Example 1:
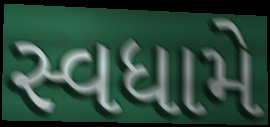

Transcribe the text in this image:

સ્વધામે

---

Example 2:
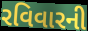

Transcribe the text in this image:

રવિવારની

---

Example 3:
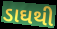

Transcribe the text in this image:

ડાઘથી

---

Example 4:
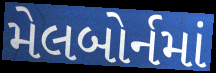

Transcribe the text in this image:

મેલબોર્નમાં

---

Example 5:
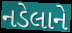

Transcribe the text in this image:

નડેલાને